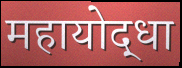
महायोद्धा